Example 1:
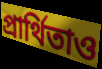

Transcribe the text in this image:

প্রার্থিতাও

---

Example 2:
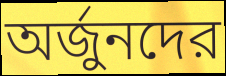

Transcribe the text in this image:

অর্জুনদের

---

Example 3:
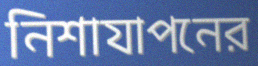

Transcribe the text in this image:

নিশাযাপনের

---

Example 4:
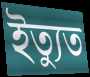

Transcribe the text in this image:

ইত্যুত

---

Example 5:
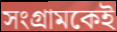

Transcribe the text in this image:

সংগ্রামকেই